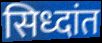
सिध्दांत